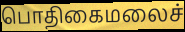
பொதிகைமலைச்